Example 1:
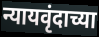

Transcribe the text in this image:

न्यायवृंदाच्या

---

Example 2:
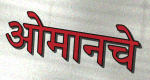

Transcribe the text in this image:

ओमानचे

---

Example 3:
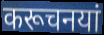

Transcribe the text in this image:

करूचनयां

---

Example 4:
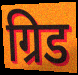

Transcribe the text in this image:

ग्रिड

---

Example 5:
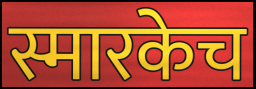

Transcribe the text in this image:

स्मारकेच